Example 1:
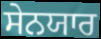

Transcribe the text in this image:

ਸੇਨਯਾਰ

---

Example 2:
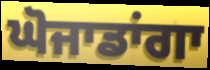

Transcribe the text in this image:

ਘੋਜਾਡਾਂਗਾ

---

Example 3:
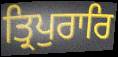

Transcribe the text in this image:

ਤ੍ਰਿਪੁਰਾਰਿ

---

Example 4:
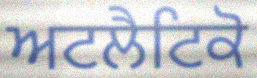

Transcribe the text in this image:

ਅਟਲੈਟਿਕੋ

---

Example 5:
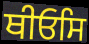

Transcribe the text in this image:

ਥੀਓਸਿ